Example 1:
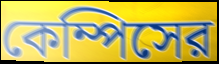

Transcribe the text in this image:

কেম্পিসের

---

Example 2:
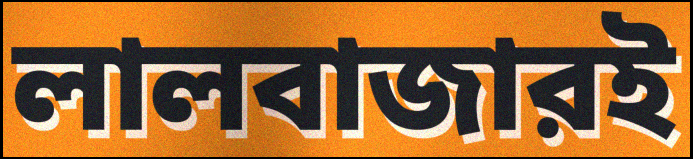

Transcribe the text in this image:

লালবাজারই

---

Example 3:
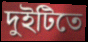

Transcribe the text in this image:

দুইটিতে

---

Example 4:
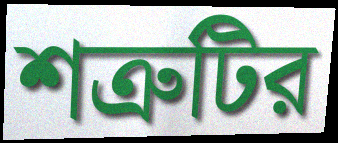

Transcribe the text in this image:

শত্রুটির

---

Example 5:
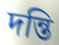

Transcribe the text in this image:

দন্তি